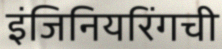
इंजिनियरिंगची